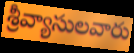
శ్రీవ్యాసులవారు